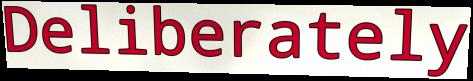
Deliberately